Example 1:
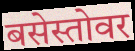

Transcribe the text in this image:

बसेस्तोवर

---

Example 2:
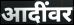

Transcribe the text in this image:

आदींवर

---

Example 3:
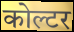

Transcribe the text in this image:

कोल्टर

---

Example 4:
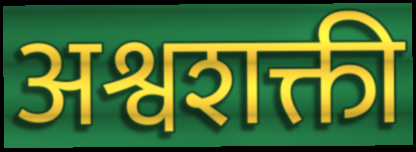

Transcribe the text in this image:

अश्वशक्ती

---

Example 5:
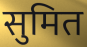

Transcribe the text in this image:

सुमित